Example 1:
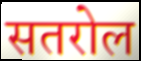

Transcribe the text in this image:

सतरोल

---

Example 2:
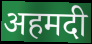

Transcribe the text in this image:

अहमदी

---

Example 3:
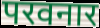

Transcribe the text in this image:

परवनार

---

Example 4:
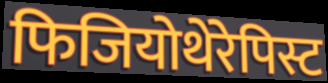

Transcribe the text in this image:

फिजियोथेरेपिस्ट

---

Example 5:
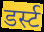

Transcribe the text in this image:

डर्स्ट